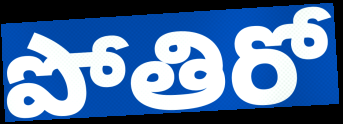
పోతిరో